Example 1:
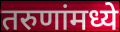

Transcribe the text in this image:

तरुणांमध्ये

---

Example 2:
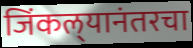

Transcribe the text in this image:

जिंकल्यानंतरचा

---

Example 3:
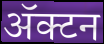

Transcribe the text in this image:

ॲक्टन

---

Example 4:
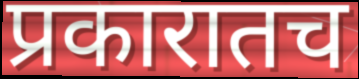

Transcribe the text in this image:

प्रकारातच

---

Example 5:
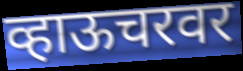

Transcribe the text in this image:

व्हाऊचरवर